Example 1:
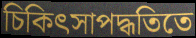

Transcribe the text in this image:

চিকিৎসাপদ্ধতিতে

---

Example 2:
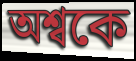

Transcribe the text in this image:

অশ্বকে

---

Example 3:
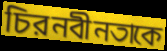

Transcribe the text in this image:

চিরনবীনতাকে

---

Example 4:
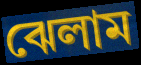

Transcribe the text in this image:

ঝেলাম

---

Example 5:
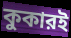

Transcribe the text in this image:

কুকারই